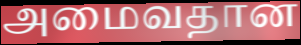
அமைவதான